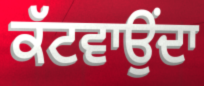
ਕੱਟਵਾਉਂਦਾ